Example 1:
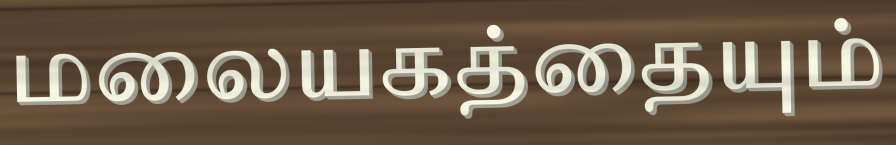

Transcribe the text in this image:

மலையகத்தையும்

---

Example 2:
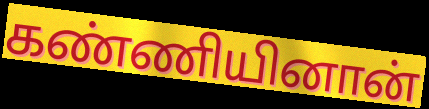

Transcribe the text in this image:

கண்ணியினான்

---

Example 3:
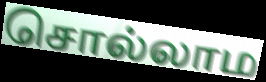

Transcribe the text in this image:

சொல்லாம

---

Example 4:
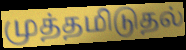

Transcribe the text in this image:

முத்தமிடுதல்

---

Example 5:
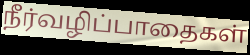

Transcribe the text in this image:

நீர்வழிப்பாதைகள்